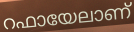
റഫായേലാണ്